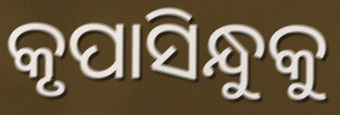
କୃପାସିନ୍ଧୁକୁ